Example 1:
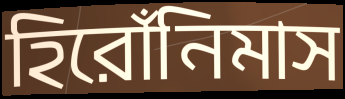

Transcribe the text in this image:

হিরোঁনিমাস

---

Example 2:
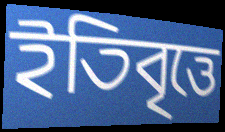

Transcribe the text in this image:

ইতিবৃত্তে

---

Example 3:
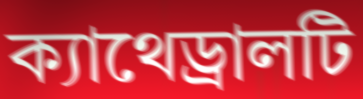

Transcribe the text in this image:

ক্যাথেড্রালটি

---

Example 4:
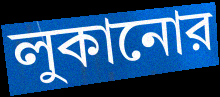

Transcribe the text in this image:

লুকানোর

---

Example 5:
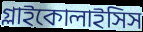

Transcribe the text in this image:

গ্লাইকোলাইসিস